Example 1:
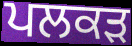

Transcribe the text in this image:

ਪਲਕੜ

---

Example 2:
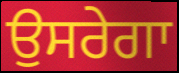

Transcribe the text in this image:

ਉਸਰੇਗਾ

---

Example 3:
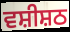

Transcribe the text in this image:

ਵਸ਼ੀਸ਼ਠ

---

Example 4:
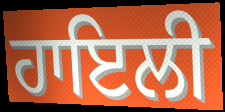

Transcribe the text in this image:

ਹਾਇਲੀ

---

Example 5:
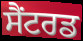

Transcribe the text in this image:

ਸੈਂਟਰਡ